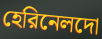
হেরিনেলদো